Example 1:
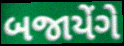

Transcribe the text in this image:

બજાયેંગે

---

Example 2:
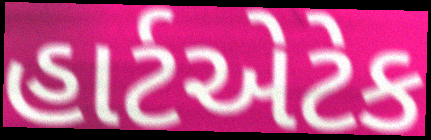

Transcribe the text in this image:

હાર્ટએટેક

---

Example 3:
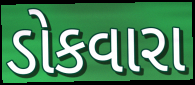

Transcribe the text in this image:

ડોકવારા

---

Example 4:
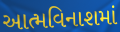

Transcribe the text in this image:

આત્મવિનાશમાં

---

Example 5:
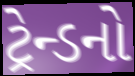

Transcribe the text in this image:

ટ્રેન્ડનો